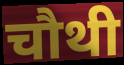
चौथी